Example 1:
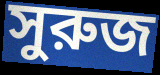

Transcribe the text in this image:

সুরুজ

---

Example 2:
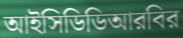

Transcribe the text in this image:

আইসিডিডিআরবির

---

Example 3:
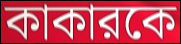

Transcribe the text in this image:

কাকারকে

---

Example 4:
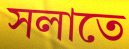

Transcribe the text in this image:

সলাতে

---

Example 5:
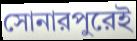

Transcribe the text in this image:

সোনারপুরেই